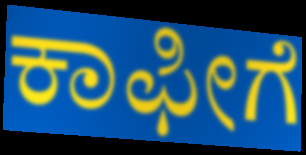
ಕಾಫೀಗೆ